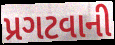
પ્રગટવાની